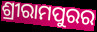
ଶ୍ରୀରାମପୁରର